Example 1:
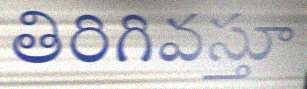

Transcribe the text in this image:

తిరిగివస్తూ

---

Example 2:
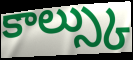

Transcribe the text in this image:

కాల్స్కు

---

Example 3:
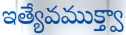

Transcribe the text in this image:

ఇత్యేవముక్త్వా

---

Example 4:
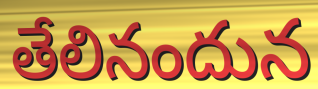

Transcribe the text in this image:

తేలినందున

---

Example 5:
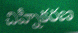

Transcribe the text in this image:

చిహ్నీకరణ